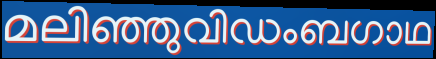
മലിഞ്ഞുവിഡംബഗാഥ